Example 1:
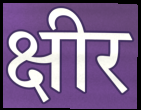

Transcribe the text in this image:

क्षीर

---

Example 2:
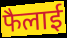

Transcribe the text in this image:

फैलाई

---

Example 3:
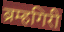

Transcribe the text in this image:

ब्रम्हगिरी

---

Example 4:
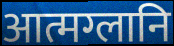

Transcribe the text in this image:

आत्मग्लानि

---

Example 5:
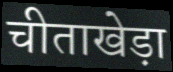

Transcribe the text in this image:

चीताखेड़ा